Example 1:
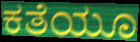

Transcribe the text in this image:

ಕತೆಯೂ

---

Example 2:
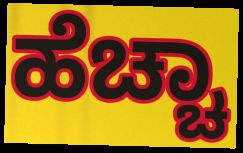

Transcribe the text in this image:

ಹೆಚ್ಚಾ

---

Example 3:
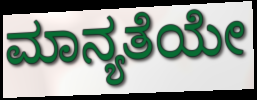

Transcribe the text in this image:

ಮಾನ್ಯತೆಯೇ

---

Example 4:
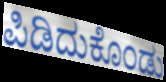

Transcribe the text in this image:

ಪಿಡಿದುಕೊಂಡು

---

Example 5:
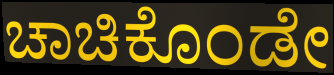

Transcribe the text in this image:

ಚಾಚಿಕೊಂಡೇ